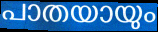
പാതയായും